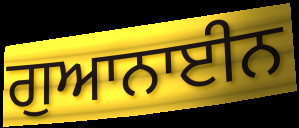
ਗੁਆਨਾਈਨ